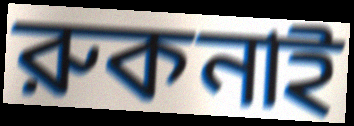
রুকনাই